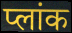
प्लांक